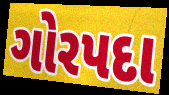
ગોરપદા